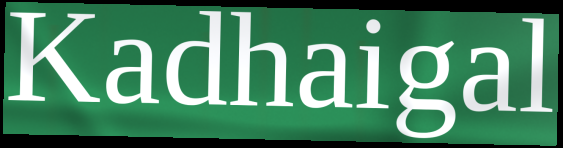
Kadhaigal